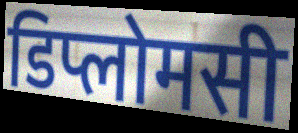
डिप्लोमसी